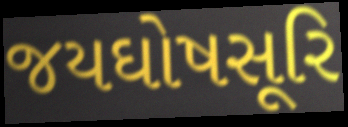
જયઘોષસૂરિ